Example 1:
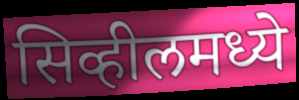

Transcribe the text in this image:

सिव्हीलमध्ये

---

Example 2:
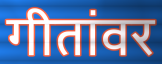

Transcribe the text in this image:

गीतांवर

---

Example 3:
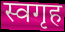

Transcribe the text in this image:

स्वगृह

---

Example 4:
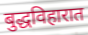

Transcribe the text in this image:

बुद्धविहारात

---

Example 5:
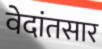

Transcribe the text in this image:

वेदांतसार